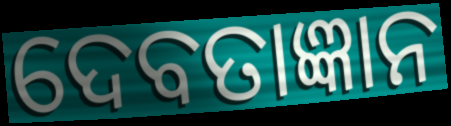
ଦେବତାଜ୍ଞାନ